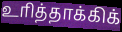
உரித்தாக்கிக்